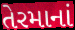
તેરમાનાં